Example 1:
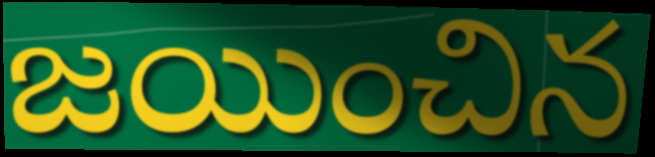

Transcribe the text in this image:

జయించిన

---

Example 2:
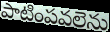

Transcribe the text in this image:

పాటింపవలెను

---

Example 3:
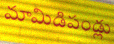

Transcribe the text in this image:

మామిడిపండ్లు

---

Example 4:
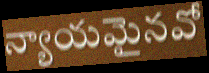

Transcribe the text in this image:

న్యాయమైనవో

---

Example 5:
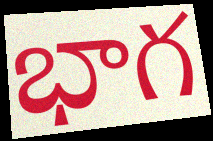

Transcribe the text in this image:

భాగ